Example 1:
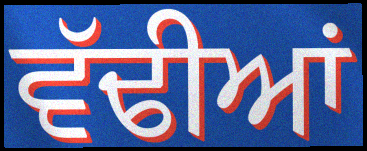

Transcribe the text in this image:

ਵੱਢੀਆਂ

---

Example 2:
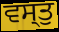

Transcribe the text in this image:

ਵਸ੍ਤੁ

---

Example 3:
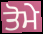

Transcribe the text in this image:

ਤੋਮੇ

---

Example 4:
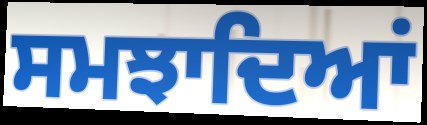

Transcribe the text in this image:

ਸਮਝਾਦਿਆਂ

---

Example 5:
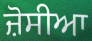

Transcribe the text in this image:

ਜ਼ੋਸੀਆ